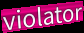
violator